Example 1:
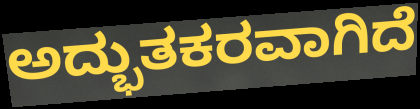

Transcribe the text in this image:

ಅದ್ಭುತಕರವಾಗಿದೆ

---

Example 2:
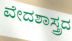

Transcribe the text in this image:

ವೇದಶಾಸ್ತ್ರದ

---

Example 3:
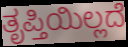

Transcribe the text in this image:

ತೃಪ್ತಿಯಿಲ್ಲದೆ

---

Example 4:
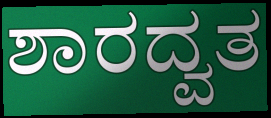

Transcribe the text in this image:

ಶಾರದ್ವತ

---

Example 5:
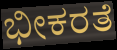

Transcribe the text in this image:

ಭೀಕರತೆ